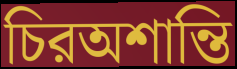
চিরঅশান্তি